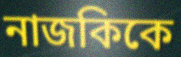
নাজকিকে